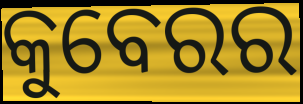
କୁବେରର